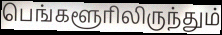
பெங்களூரிலிருந்தும்